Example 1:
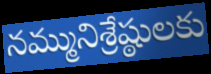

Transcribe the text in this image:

నమ్మునిశ్రేష్ఠులకు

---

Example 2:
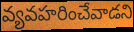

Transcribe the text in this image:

వ్యవహరించేవాడని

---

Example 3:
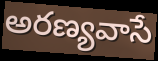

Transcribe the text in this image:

అరణ్యవాసే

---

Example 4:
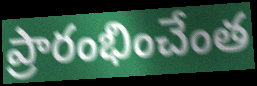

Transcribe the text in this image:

ప్రారంభించేంత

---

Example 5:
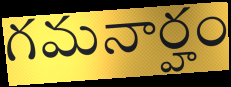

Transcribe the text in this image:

గమనార్హం